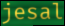
jesal